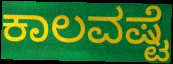
ಕಾಲವಷ್ಟೆ